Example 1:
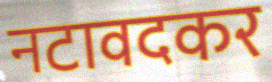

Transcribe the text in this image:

नटावदकर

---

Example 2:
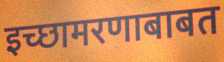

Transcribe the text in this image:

इच्छामरणाबाबत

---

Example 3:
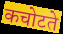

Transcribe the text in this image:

कचोटते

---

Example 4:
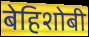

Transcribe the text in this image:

बेहिशोबी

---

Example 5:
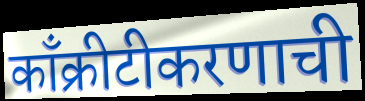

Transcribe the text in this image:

काँक्रीटीकरणाची